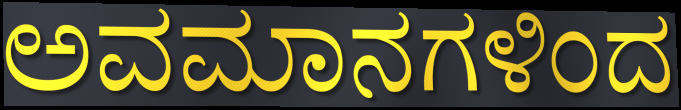
ಅವಮಾನಗಳಿಂದ